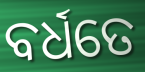
ବର୍ଧତେ